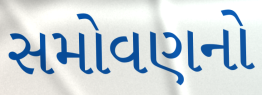
સમોવણનો